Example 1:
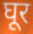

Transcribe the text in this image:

घूर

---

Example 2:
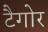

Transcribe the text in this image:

टैगोर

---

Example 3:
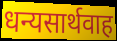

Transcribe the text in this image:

धन्यसार्थवाह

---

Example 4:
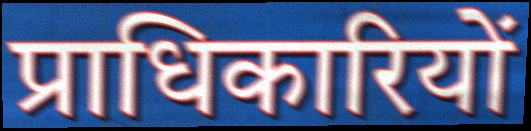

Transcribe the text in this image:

प्राधिकारियों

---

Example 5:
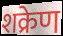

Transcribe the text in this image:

शक्रेण